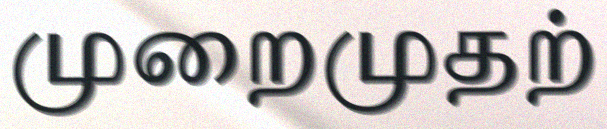
முறைமுதற்